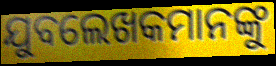
ଯୁବଲେଖକମାନଙ୍କୁ